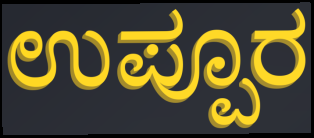
ಉಪ್ಪೂರ